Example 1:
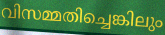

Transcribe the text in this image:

വിസമ്മതിച്ചെങ്കിലും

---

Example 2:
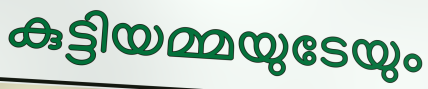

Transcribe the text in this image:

കുട്ടിയമ്മയുടേയും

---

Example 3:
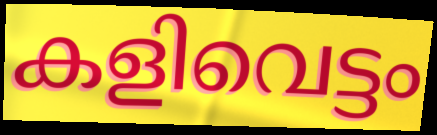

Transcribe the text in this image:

കളിവെട്ടം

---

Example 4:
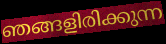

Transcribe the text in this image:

ഞങ്ങളിരിക്കുന്ന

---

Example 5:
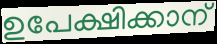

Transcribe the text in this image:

ഉപേക്ഷിക്കാന്